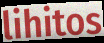
lihitos